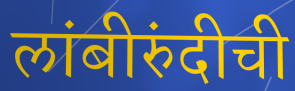
लांबीरुंदीची